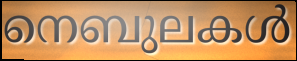
നെബുലകൾ